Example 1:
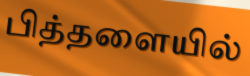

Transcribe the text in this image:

பித்தளையில்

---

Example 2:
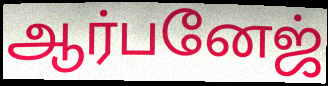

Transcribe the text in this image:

ஆர்பனேஜ்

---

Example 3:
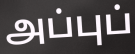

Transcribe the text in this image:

அப்புப்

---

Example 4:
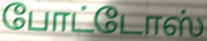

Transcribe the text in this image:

போட்டோஸ்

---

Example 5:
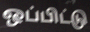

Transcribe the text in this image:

ஒப்பிட்டு